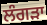
ਲੰਗੜਾ